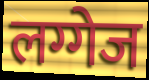
लग्गेज